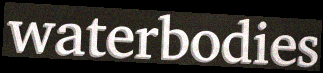
waterbodies